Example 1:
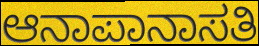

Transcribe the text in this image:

ಆನಾಪಾನಾಸತಿ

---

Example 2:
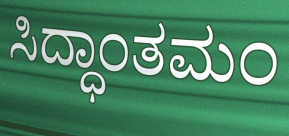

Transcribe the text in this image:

ಸಿದ್ಧಾಂತಮಂ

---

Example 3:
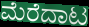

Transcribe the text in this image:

ಮೆರೆದಾಟ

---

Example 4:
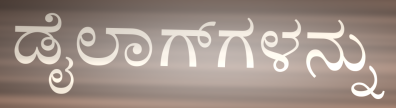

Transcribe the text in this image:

ಡೈಲಾಗ್‌ಗಳನ್ನು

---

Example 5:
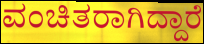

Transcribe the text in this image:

ವಂಚಿತರಾಗಿದ್ದಾರೆ